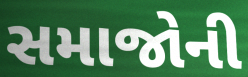
સમાજોની